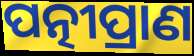
ପତ୍ନୀପ୍ରାଣ